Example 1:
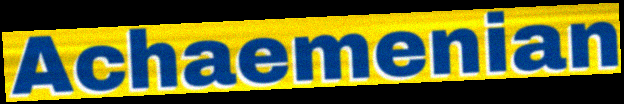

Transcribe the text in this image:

Achaemenian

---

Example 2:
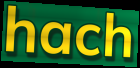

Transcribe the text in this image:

hach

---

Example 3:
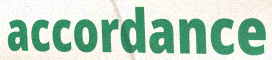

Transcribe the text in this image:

accordance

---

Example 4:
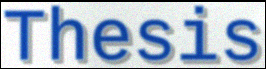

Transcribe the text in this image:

Thesis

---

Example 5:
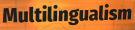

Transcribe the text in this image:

Multilingualism